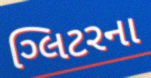
ગ્લિટરના